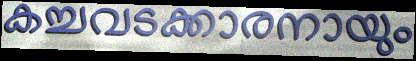
കച്ചവടക്കാരനായും